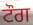
ਟੌਗ